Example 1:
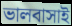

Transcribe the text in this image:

ভালবাসাই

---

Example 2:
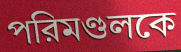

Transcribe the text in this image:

পরিমণ্ডলকে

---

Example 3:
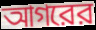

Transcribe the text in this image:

আগরের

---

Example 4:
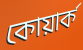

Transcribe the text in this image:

কোয়ার্ক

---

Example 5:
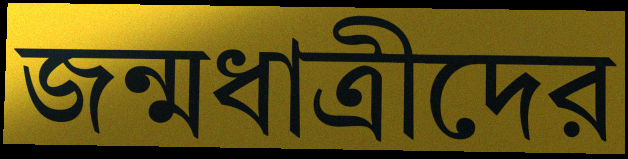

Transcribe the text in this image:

জন্মধাত্রীদের